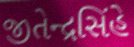
જીતેન્દ્રસિંહે